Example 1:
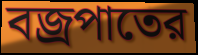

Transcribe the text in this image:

বজ্রপাতের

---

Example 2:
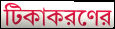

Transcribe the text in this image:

টিকাকরণের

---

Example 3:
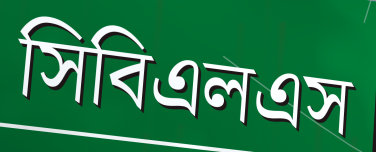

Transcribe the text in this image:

সিবিএলএস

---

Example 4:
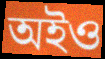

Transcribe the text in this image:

অইও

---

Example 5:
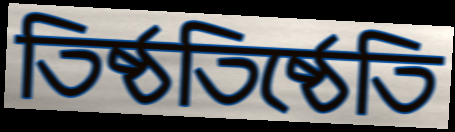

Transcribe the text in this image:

তিষ্ঠতিষ্ঠেতি